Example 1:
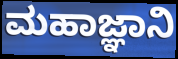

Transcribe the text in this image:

ಮಹಾಜ್ಞಾನಿ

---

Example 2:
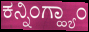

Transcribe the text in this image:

ಕನ್ನಿಂಗ್ಹ್ಯಾಂ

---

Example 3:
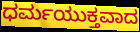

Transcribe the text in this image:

ಧರ್ಮಯುಕ್ತವಾದ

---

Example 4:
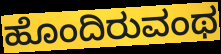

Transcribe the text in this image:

ಹೊಂದಿರುವಂಥ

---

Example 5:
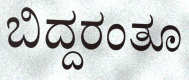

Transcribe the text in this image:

ಬಿದ್ದರಂತೂ